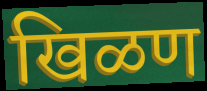
खिळण